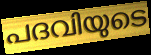
പദവിയുടെ